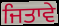
ਜਿਤਾਵੇ